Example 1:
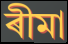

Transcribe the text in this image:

ৰীমা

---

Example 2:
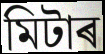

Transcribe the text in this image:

মিটাৰ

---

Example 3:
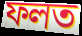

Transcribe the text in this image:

ফলত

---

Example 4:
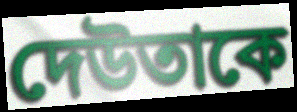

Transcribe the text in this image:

দেউতাকে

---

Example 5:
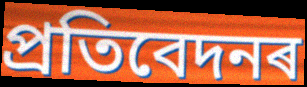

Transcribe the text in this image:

প্ৰতিবেদনৰ